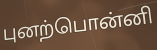
புனற்பொன்னி